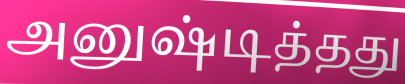
அனுஷ்டித்தது